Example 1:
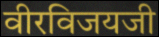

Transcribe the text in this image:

वीरविजयजी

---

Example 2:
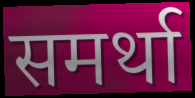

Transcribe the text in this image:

समर्था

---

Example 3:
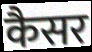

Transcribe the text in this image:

कैसर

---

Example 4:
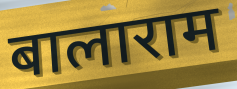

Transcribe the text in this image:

बालाराम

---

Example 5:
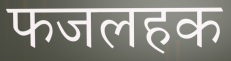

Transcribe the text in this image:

फजलहक